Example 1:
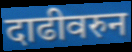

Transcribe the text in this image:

दाढीवरुन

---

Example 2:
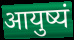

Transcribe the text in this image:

आयुष्यं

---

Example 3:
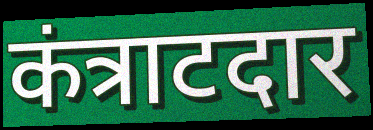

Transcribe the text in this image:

कंत्राटदार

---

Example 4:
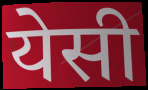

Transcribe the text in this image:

येसी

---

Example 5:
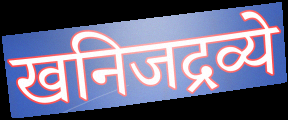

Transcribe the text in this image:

खनिजद्रव्ये